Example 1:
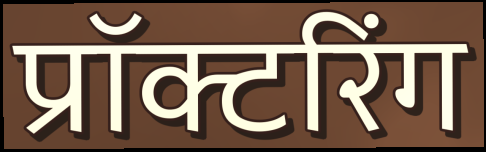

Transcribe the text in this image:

प्रॉक्टरिंग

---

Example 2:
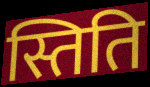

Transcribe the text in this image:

स्तिति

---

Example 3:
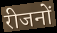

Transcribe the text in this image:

रीजनों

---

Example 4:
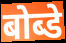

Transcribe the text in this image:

बोब्डे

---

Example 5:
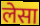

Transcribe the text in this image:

लेसा